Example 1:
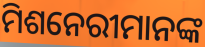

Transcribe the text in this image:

ମିଶନେରୀମାନଙ୍କ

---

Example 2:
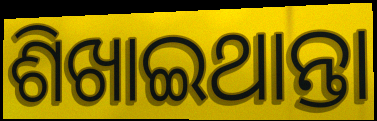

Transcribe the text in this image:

ଶିଖାଇଥାନ୍ତା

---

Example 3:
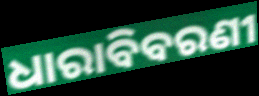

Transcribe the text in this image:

ଧାରାବିବରଣୀ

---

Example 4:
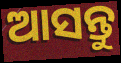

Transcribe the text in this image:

ଆସନ୍ତୁ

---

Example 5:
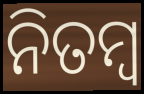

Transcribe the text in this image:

ନିତମ୍ୱ